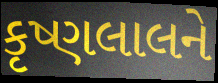
કૃષ્ણલાલને